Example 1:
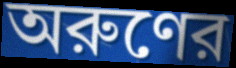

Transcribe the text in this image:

অরুণের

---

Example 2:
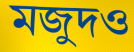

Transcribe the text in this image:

মজুদও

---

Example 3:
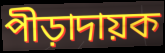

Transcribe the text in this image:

পীড়াদায়ক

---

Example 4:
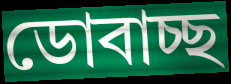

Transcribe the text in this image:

ডোবাচ্ছ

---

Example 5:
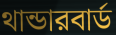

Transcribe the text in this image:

থান্ডারবার্ড